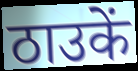
ठाउकें